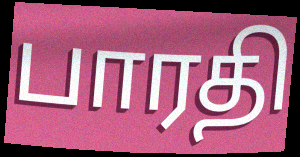
பாரதி